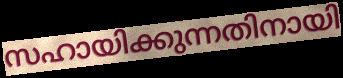
സഹായിക്കുന്നതിനായി